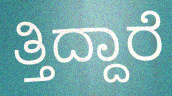
ತ್ತಿದ್ದಾರೆ